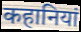
कहानियां